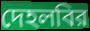
দেহলবির